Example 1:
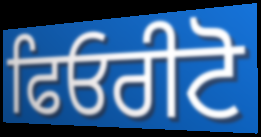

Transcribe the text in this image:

ਫਿਓਰੀਟੋ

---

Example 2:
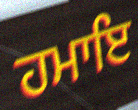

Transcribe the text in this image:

ਹਮਾਇ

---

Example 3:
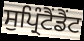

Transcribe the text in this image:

ਸੁਪ੍ਰਿੰਟੈਂਡੈਂਟ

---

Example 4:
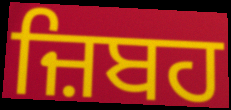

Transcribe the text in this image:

ਜ਼ਿਬਹ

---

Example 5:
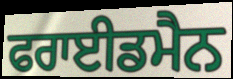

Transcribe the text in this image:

ਫਰਾਈਡਮੈਨ